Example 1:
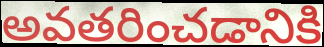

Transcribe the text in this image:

అవతరించడానికి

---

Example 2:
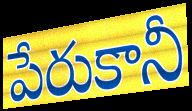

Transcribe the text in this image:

పేరుకానీ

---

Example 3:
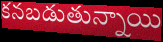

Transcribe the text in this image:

కనబడుతున్నాయి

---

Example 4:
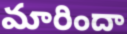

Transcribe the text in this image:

మారిందా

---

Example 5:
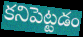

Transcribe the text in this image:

కనిపెట్టడం